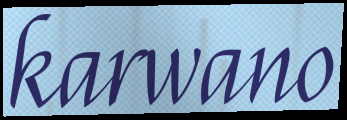
karwano